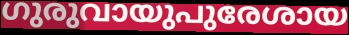
ഗുരുവായുപുരേശായ